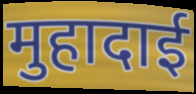
मुहादाई